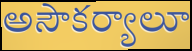
అసౌకర్యాలూ